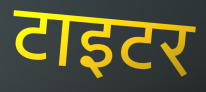
टाइटर